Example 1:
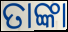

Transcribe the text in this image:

ତାଙ୍କା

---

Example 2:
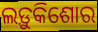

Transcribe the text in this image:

ଲଡ଼ୁକିଶୋର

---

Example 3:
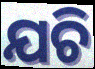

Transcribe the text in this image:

ଯଚି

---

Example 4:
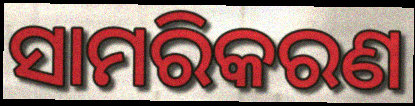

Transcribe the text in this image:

ସାମରିକରଣ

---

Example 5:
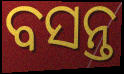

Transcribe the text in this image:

ବସନ୍ତ